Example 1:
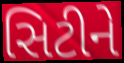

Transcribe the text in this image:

સિટીને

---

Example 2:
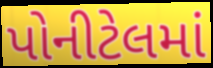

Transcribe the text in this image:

પોનીટેલમાં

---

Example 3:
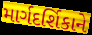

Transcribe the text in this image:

માર્ગદર્શિકાને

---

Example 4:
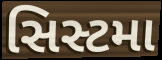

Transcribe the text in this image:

સિસ્ટમા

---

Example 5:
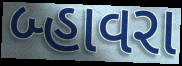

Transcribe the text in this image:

બ્હાવરા